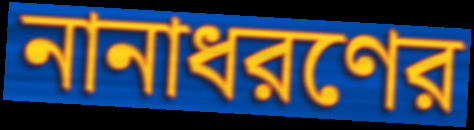
নানাধরণের